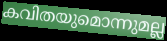
കവിതയുമൊന്നുമല്ല